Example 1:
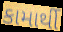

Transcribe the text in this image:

કામાર્થી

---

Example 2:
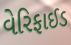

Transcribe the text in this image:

વેરિફાઈડ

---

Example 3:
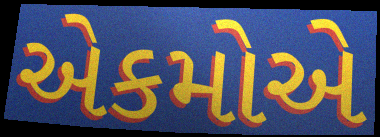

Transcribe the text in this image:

એકમોએ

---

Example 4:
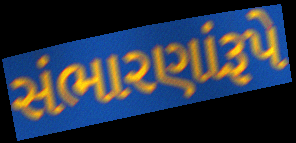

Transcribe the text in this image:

સંભારણાંરૂપે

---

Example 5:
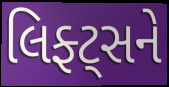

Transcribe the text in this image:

લિફ્ટ્સને